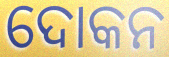
ଦୋକନ